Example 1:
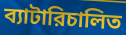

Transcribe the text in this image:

ব্যাটারিচালিত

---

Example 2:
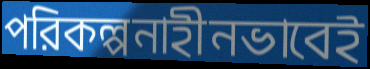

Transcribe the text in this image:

পরিকল্পনাহীনভাবেই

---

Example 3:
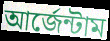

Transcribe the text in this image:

আর্জেন্টাম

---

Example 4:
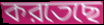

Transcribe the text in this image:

করতেছে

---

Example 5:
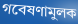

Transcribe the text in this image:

গবেষণামুলক